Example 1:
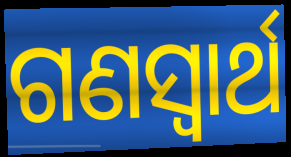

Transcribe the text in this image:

ଗଣସ୍ୱାର୍ଥ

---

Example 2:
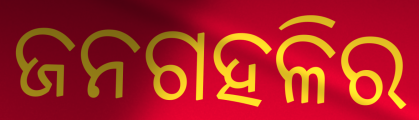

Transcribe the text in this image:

ଜନଗହଳିର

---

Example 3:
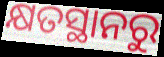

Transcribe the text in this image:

କ୍ଷତସ୍ଥାନରୁ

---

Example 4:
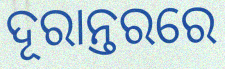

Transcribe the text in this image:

ଦୂରାନ୍ତରରେ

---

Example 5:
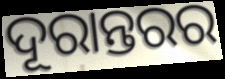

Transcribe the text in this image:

ଦୂରାନ୍ତରର